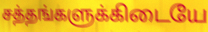
சத்தங்களுக்கிடையே